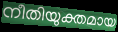
നീതിയുക്തമായ